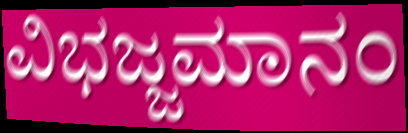
ವಿಭಜ್ಜಮಾನಂ